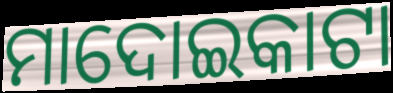
ମାଦୋଇକାଟା